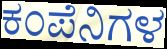
ಕಂಪೆನಿಗಳ